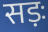
सड़ः